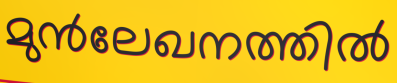
മുൻലേഖനത്തിൽ